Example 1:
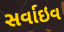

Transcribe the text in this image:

સર્વાઇવ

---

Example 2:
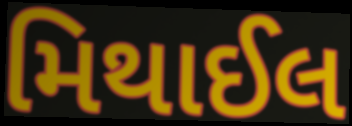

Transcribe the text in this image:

મિથાઈલ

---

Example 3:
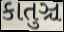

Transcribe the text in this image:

કાતુઞ્ચ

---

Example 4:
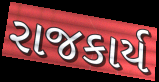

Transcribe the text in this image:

રાજકાર્ય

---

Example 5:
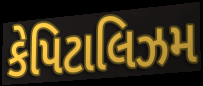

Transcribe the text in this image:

કેપિટાલિઝમ